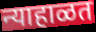
न्याहाळत